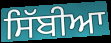
ਸਿੱਬੀਆ